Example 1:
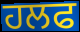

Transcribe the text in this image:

ਹਲਫ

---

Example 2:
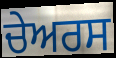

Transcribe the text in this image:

ਚੇਅਰਸ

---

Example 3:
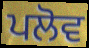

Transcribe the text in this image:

ਪਲੋਵ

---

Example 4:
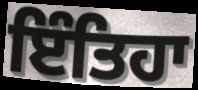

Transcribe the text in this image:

ਇੰਤਿਹਾ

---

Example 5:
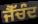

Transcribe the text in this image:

ਜੈੱਚੰਦ